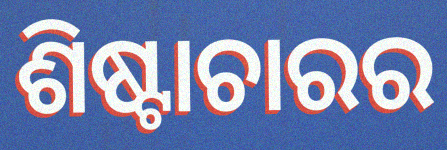
ଶିଷ୍ଟାଚାରର